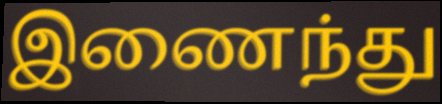
இணைந்து